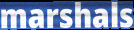
marshals